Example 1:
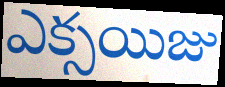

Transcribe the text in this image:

ఎక్సయిజు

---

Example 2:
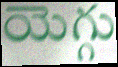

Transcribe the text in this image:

యెగ్గు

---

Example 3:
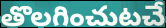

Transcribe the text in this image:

తొలగించుటచే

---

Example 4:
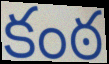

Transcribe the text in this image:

కంఠ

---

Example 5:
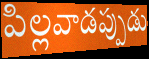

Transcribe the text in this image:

పిల్లవాడప్పుడు